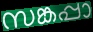
സങ്കപ്പാ